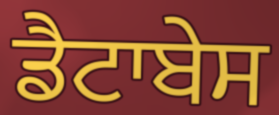
ਡੈਟਾਬੇਸ